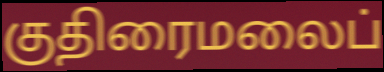
குதிரைமலைப்